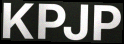
KPJP